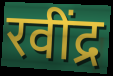
रवींद्र